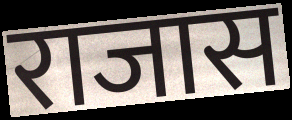
राजास